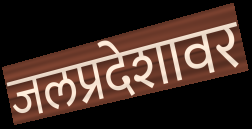
जलप्रदेशावर